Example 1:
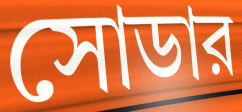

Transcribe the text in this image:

সোডার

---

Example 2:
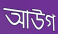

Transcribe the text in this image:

আউগ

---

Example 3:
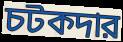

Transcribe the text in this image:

চটকদার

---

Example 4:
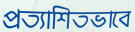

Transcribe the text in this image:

প্রত্যাশিতভাবে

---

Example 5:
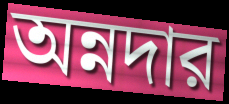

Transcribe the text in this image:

অন্নদার